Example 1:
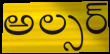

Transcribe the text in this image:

అల్సర్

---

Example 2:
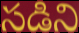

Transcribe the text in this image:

సడిని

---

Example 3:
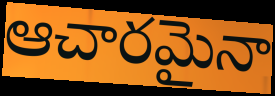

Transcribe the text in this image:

ఆచారమైనా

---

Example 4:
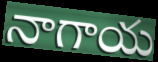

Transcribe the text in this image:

నాగాయ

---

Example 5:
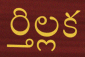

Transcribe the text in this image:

ర్తిల్లక